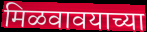
मिळवावयाच्या